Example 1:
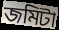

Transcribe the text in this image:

জমিটা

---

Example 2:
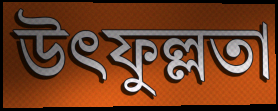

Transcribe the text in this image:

উৎফুল্লতা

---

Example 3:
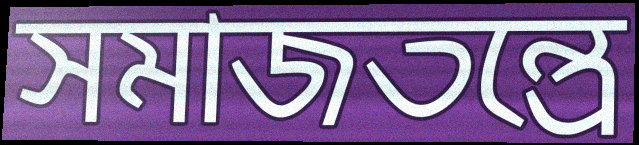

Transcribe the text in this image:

সমাজতন্ত্রে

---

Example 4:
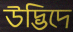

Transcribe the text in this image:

উদ্ভিদে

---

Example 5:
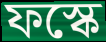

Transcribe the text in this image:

ফস্কে